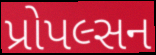
પ્રોપલ્સન